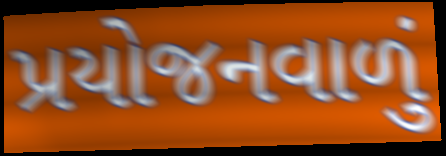
પ્રયોજનવાળું